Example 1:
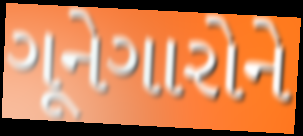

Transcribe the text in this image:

ગૂનેગારોને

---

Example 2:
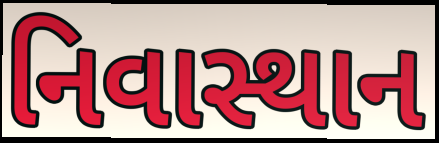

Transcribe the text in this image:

નિવાસ્થાન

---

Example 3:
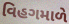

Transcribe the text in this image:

વિહગમાળે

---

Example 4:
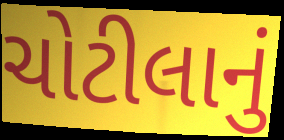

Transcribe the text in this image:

ચોટીલાનું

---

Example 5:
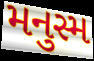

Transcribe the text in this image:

મનુસ્મ